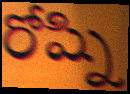
రోష్ని